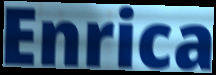
Enrica